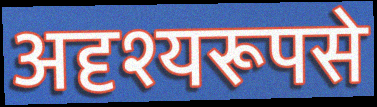
अदृश्यरूपसे